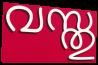
വസ്തു